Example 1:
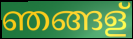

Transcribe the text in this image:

ഞങ്ങള്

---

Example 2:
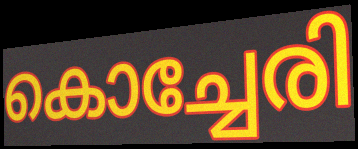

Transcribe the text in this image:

കൊച്ചേരി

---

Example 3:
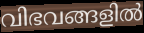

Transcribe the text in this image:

വിഭവങ്ങളിൽ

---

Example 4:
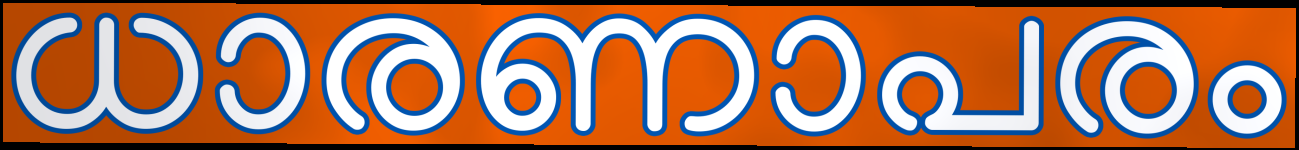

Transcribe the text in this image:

ധാരണാപരം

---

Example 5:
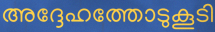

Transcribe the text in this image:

അദ്ദേഹത്തോടുകൂടി